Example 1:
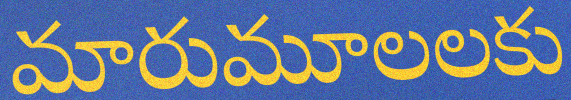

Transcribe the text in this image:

మారుమూలలకు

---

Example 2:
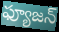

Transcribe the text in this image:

ఫ్యూజన్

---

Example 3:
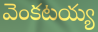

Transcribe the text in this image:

వెంకటయ్య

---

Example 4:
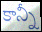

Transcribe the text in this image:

కాన్నీ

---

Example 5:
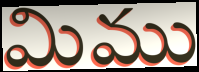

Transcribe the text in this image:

మిము